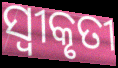
ସ୍ୱୀକୃତୀ